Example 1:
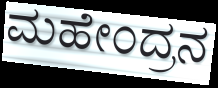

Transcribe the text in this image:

ಮಹೇಂದ್ರನ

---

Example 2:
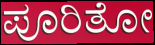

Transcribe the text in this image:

ಪೂರಿತೋ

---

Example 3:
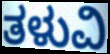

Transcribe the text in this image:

ತಳುವಿ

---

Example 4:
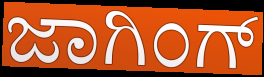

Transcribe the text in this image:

ಜಾಗಿಂಗ್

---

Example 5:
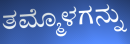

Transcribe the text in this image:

ತಮ್ಮೊಳಗನ್ನು